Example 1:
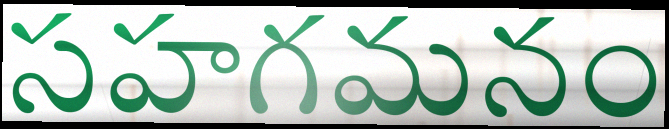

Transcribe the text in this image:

సహగమనం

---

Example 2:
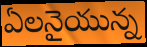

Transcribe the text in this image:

ఏలనైయున్న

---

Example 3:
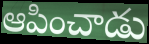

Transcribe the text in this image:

ఆపించాడు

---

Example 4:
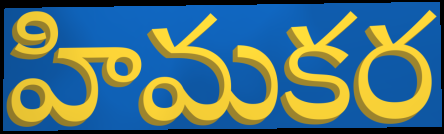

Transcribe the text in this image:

హిమకర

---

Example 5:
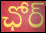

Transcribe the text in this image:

ఛోర్